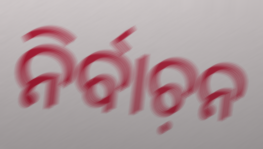
ନିର୍ବାଚ଼ନ